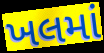
ખલમાં